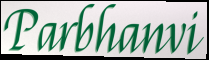
Parbhanvi